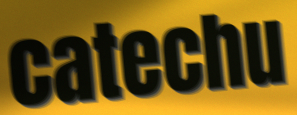
catechu